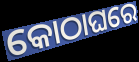
କୋଠାଘରେ